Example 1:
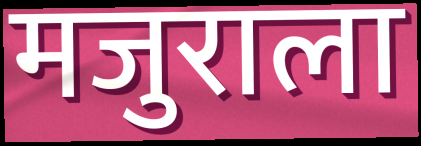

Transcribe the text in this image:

मजुराला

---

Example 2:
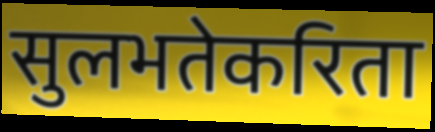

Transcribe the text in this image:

सुलभतेकरिता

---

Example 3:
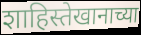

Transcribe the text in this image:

शाहिस्तेखानाच्या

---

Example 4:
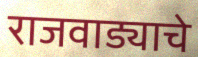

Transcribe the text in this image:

राजवाड्याचे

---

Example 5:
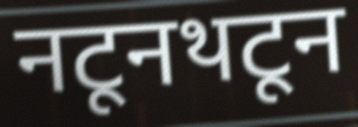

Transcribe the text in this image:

नटूनथटून